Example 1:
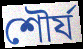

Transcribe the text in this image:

শৌর্য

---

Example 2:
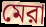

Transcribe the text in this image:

মেরা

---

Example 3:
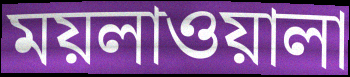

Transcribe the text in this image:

ময়লাওয়ালা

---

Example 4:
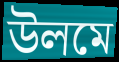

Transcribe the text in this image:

উলমে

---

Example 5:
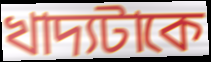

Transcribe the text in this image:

খাদ্যটাকে